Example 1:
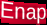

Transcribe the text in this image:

Enap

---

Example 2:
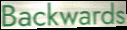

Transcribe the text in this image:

Backwards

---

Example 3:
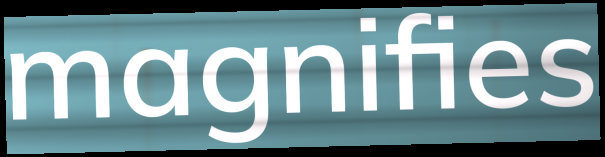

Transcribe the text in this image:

magnifies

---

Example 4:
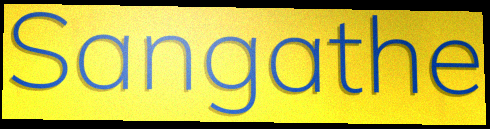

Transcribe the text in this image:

Sangathe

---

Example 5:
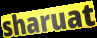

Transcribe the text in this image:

sharuat